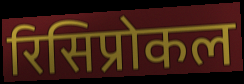
रिसिप्रोकल